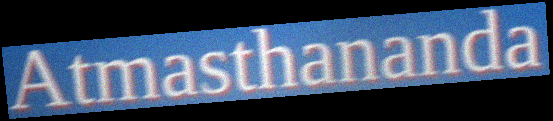
Atmasthananda